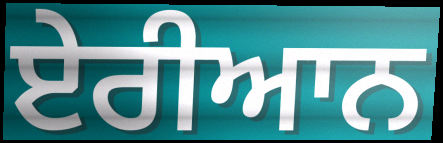
ਏਰੀਆਨ